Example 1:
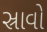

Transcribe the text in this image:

સ્રાવો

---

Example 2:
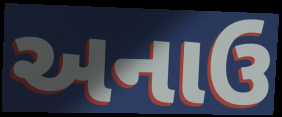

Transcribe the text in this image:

અનાઉ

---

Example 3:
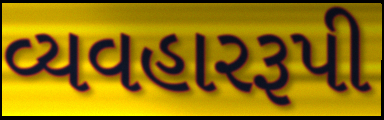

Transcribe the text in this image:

વ્યવહારરૂપી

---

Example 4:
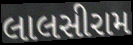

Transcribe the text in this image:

લાલસીરામ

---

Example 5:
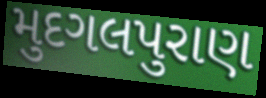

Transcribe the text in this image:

મુદગલપુરાણ